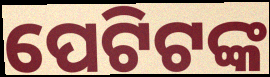
ପେଟିଟଙ୍କ